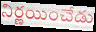
నిర్ణయించేడు